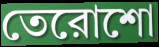
তেরোশো